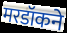
मरडॉकने